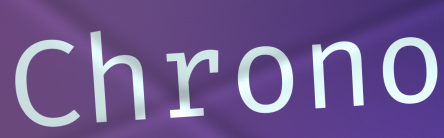
Chrono